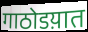
गाठोडय़ात